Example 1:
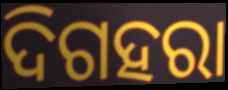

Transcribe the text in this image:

ଦିଗହରା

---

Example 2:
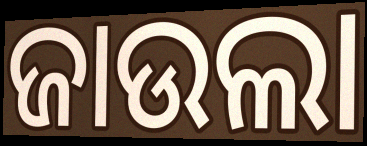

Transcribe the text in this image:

ଜାଉଲା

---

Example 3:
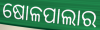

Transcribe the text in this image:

ଷୋଳପାଲାର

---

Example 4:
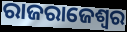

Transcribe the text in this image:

ରାଜରାଜେଶ୍ଵର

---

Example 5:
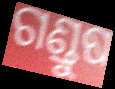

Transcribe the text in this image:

ଗଣ୍ଡୁଷ